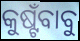
କୁଷ୍ଟଁବାବୁ